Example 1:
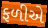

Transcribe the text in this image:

ફળીએ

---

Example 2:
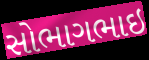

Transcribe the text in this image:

સોભાગભાઇ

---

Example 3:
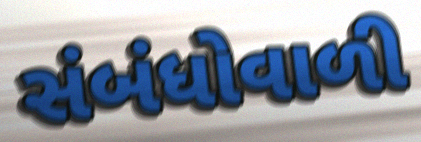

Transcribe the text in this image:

સંબંધોવાળી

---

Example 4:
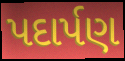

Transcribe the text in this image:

પદાર્પણ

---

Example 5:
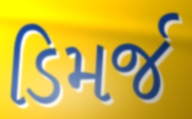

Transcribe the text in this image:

ડિમર્જ